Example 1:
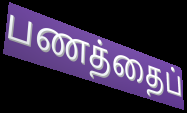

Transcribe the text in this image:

பணத்தைப்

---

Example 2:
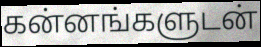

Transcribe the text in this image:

கன்னங்களுடன்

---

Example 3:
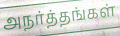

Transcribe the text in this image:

அநர்த்தங்கள்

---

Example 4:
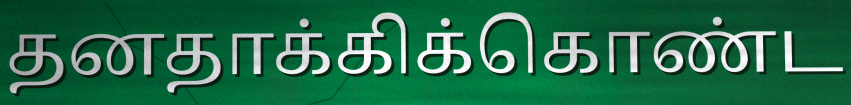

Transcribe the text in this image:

தனதாக்கிக்கொண்ட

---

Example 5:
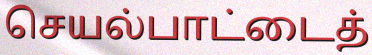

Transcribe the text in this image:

செயல்பாட்டைத்